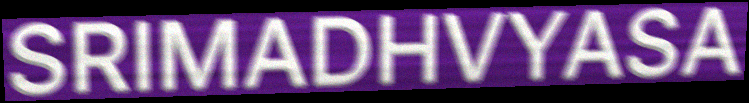
SRIMADHVYASA